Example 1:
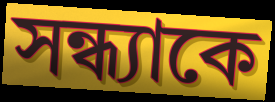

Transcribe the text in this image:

সন্ধ্যাকে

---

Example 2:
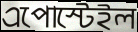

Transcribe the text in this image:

এপোস্টেইল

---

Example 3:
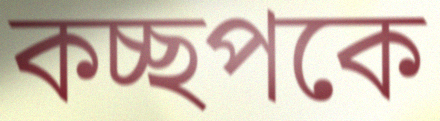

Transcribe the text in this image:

কচ্ছপকে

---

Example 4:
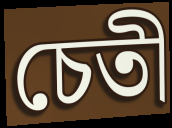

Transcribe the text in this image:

চেতী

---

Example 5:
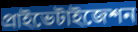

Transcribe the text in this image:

প্রাইভেটাইজেশন